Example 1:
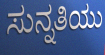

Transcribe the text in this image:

ಸುನ್ನತಿಯು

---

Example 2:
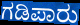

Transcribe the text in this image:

ಗಡಿಪಾರು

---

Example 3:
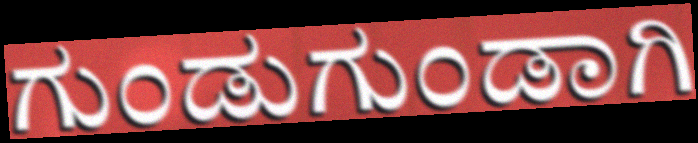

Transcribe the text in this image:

ಗುಂಡುಗುಂಡಾಗಿ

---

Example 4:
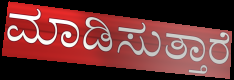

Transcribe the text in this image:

ಮಾಡಿಸುತ್ತಾರೆ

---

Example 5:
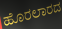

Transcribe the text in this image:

ಹೊರಲಾರದ